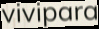
vivipara